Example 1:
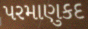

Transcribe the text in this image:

પરમાણુકદ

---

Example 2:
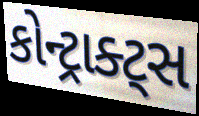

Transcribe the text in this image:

કોન્ટ્રાક્ટ્સ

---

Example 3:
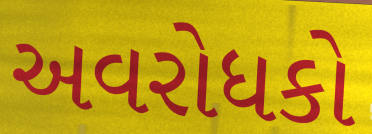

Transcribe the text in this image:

અવરોધકો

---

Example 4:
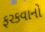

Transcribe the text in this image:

ફરકવાનો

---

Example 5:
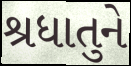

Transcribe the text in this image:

શ્રધાતુને